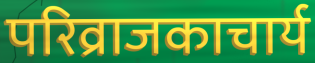
परिव्राजकाचार्य